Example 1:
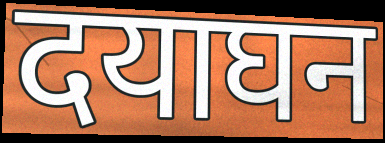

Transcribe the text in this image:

दयाघन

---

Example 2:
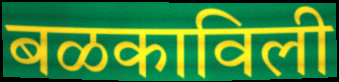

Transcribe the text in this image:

बळकाविली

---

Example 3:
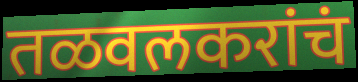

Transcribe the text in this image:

तळवलकरांचं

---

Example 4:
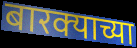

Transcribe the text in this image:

बारक्याच्या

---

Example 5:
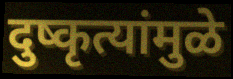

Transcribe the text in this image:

दुष्कृत्यांमुळे